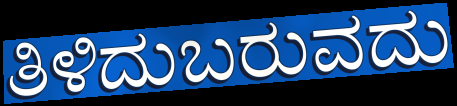
ತಿಳಿದುಬರುವದು